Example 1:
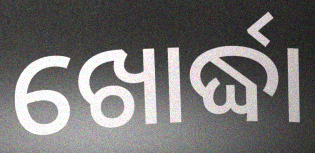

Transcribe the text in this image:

ଖୋର୍ଦ୍ଧା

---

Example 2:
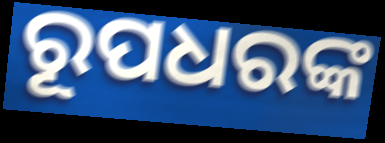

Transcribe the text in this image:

ରୂପଧରଙ୍କ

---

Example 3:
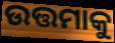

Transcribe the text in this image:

ଉତ୍ତମାକୁ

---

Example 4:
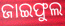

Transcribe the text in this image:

ଜାଇଫୁଲ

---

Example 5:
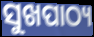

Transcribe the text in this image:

ସୁଖପାଠ୍ୟ